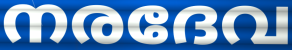
നരദേവ